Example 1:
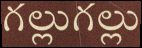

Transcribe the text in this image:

గల్లుగల్లు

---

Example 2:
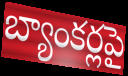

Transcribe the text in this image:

బ్యాంకర్లపై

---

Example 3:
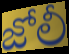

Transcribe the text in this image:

జోలీ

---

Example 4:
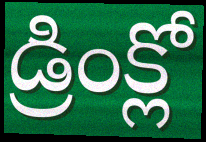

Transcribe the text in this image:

డ్రింక్లో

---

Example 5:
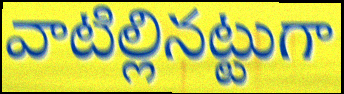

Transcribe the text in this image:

వాటిల్లినట్టుగా